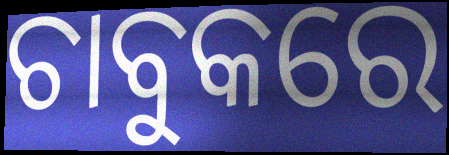
ଚାବୁକରେ